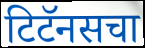
टिटॅनसचा